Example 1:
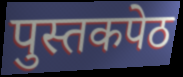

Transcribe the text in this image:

पुस्तकपेठ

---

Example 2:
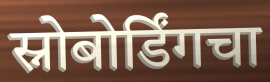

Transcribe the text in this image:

स्नोबोर्डिंगचा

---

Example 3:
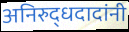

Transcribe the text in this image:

अनिरुद्धदादांनी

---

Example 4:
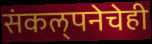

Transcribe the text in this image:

संकल्पनेचेही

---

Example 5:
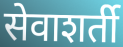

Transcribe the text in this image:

सेवाशर्ती